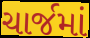
ચાર્જમાં